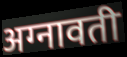
अग्नावती